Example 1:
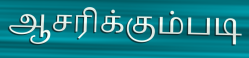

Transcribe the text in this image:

ஆசரிக்கும்படி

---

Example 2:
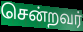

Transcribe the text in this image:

சென்றவர்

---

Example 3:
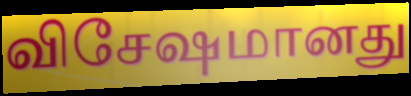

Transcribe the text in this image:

விசேஷமானது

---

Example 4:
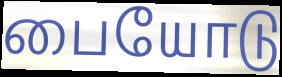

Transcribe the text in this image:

பையோடு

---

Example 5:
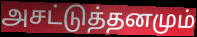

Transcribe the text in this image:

அசட்டுத்தனமும்